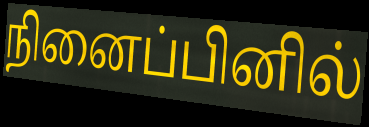
நினைப்பினில்